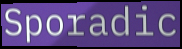
Sporadic